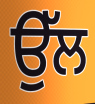
ਉੱਲ